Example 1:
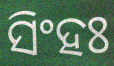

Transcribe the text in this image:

ସିଂହଃ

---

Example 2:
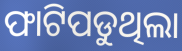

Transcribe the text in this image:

ଫାଟିପଡୁଥିଲା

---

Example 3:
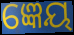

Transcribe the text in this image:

ଜ୍ଞେୟ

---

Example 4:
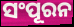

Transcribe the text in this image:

ସଂପୂରନ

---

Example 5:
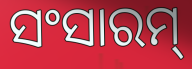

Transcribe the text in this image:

ସଂସାରମ୍